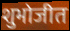
शुभोजीत